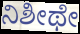
ನಿಶೀಥೇ